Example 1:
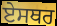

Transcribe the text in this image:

ਏਸਥਰ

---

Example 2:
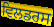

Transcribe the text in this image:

ਵਿਲਡਰਸ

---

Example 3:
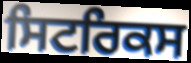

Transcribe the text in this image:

ਸਿਟਰਿਕਸ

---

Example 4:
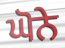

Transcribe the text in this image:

ਘੋਨੇ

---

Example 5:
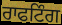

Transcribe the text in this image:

ਰਾਫਟਿੰਗ